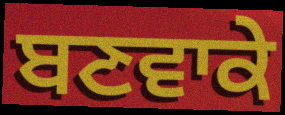
ਬਣਵਾਕੇ